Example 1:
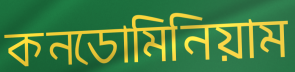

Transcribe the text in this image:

কনডোমিনিয়াম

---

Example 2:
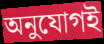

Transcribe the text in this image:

অনুযোগই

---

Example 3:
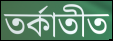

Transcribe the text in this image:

তর্কাতীত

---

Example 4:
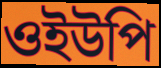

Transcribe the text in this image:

ওইউপি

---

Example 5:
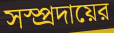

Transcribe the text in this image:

সস্প্রদায়ের